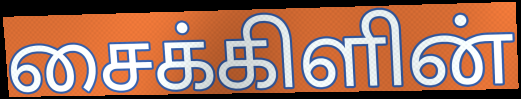
சைக்கிளின்